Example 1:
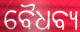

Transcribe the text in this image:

ବୈଧବ୍ୟ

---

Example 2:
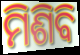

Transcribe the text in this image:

ମିଶିବି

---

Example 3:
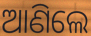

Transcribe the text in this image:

ଆଣିଲେ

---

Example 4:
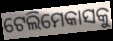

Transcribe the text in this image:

ଟେଲିମେକାସକୁ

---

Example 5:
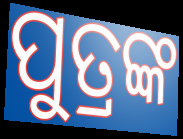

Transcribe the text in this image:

ପୁତ୍ରଙ୍କ